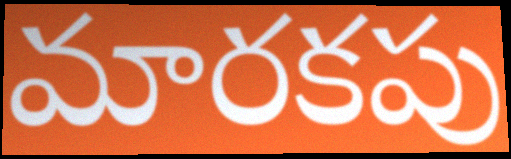
మారకపు